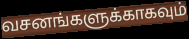
வசனங்களுக்காகவும்